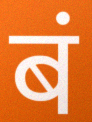
बं